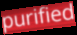
purified